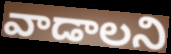
వాడాలని